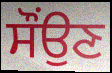
ਸੌਂਉਣ